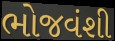
ભોજવંશી